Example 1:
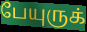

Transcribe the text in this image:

பேயுருக்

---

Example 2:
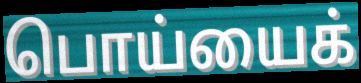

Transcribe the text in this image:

பொய்யைக்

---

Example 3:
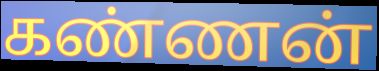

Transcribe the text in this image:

கண்ணன்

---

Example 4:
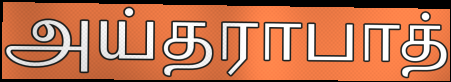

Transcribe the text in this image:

அய்தராபாத்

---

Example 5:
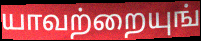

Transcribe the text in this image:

யாவற்றையுங்